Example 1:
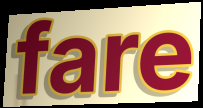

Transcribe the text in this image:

fare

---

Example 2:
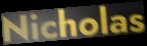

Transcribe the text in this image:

Nicholas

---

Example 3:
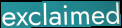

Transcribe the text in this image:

exclaimed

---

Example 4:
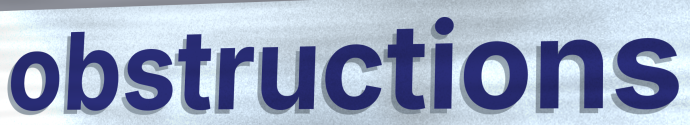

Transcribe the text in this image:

obstructions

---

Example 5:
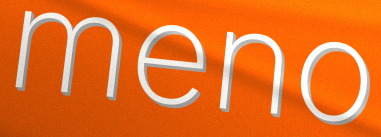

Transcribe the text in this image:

meno